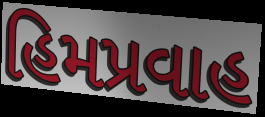
હિમપ્રવાહ